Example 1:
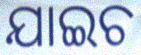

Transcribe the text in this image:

ଯାଇଚ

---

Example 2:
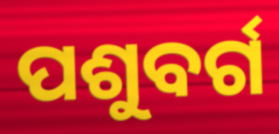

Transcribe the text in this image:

ପଶୁବର୍ଗ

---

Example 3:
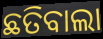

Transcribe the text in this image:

ଛତିବାଲା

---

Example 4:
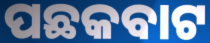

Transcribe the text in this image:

ପଛକବାଟ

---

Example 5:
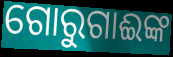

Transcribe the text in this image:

ଗୋରୁଗାଈଙ୍କ